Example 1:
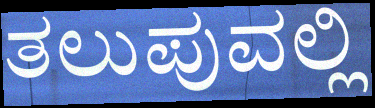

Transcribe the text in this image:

ತಲುಪುವಲ್ಲಿ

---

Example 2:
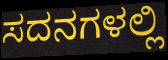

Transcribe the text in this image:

ಸದನಗಳಲ್ಲಿ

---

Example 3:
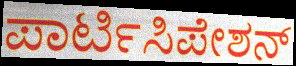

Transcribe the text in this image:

ಪಾರ್ಟಿಸಿಪೇಶನ್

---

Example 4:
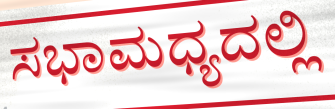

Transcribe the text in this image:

ಸಭಾಮಧ್ಯದಲ್ಲಿ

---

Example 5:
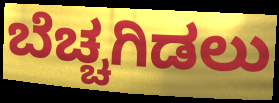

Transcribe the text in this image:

ಬೆಚ್ಚಗಿಡಲು